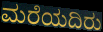
ಮರೆಯದಿರು